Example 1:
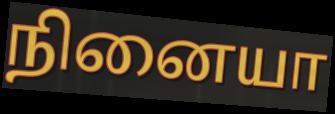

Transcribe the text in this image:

நினையா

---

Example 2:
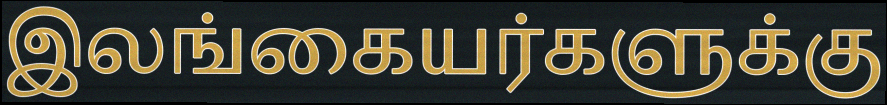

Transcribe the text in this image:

இலங்கையர்களுக்கு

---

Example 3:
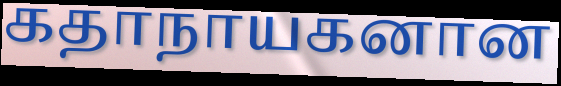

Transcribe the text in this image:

கதாநாயகனான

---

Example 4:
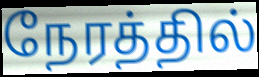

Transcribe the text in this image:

நேரத்தில்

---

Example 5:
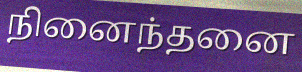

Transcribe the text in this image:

நினைந்தனை